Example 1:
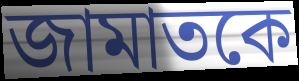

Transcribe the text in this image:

জামাতকে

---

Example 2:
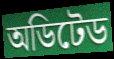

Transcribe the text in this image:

অডিটেড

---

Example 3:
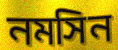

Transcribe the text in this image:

নমসিন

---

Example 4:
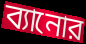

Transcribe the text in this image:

ব্যানোর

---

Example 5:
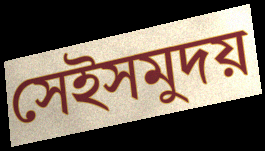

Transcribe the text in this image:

সেইসমুদয়